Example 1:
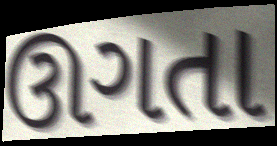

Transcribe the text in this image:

ઊગતા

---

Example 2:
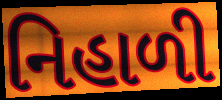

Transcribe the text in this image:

નિહાળી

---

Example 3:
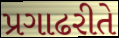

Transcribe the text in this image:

પ્રગાઢરીતે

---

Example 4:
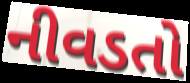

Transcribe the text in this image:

નીવડતો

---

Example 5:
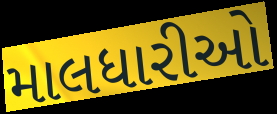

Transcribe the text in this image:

માલધારીઓ